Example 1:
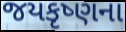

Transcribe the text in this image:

જયકૃષ્ણના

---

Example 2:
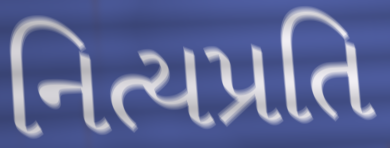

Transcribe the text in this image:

નિત્યપ્રતિ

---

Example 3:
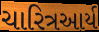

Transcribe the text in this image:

ચારિત્રઆર્ય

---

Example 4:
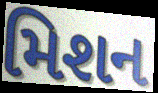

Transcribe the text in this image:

મિશન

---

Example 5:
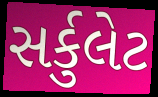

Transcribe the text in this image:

સર્કુલેટ